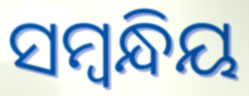
ସମ୍ଵନ୍ଧିୟ